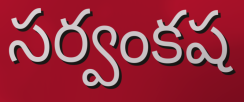
సర్వంకష